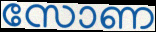
സോണ